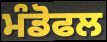
ਮੰਡੋਫਲ